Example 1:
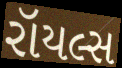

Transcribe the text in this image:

રૉયલ્સ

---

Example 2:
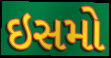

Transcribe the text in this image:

ઇસમો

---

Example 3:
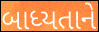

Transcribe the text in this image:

બાધ્યતાને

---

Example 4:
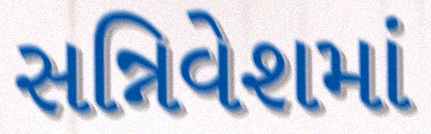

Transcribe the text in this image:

સન્નિવેશમાં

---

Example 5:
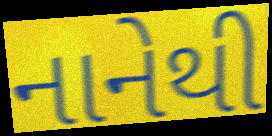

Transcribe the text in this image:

નાનેથી